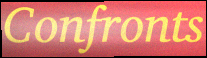
Confronts